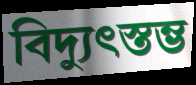
বিদ্যুৎস্তম্ভ